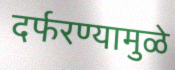
दर्फरण्यामुळे